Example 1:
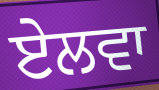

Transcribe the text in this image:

ਏਲਵਾ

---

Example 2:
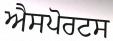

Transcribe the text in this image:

ਐਸਪੋਰਟਸ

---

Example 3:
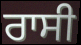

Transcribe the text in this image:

ਰਾਸੀ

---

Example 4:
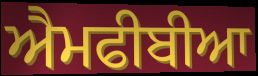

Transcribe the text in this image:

ਐਮਫੀਬੀਆ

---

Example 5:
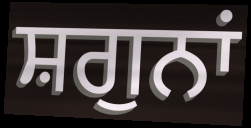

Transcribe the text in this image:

ਸ਼ਗੁਨਾਂ